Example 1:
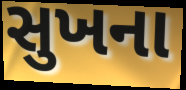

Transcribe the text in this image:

સુખના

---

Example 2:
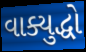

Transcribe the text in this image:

વાક્યુદ્ધો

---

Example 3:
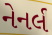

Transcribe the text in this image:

નેનર્લ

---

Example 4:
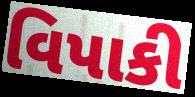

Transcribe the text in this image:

વિપાકી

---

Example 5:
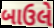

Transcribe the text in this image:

બાઉલે